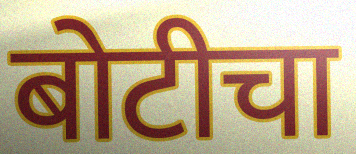
बोटीचा